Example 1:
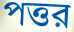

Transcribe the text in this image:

পত্তর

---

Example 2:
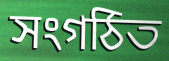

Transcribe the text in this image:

সংগঠিত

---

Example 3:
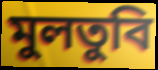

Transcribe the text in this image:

মুলতুবি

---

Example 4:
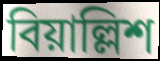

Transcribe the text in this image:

বিয়াল্লিশ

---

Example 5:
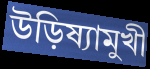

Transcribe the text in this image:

উড়িষ্যামুখী